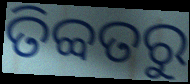
ତିବ୍ବତରୁ